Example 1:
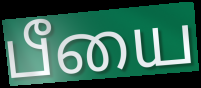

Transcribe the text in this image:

பீயை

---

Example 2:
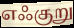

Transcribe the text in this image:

எஃகுறு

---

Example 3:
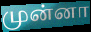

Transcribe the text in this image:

முன்னா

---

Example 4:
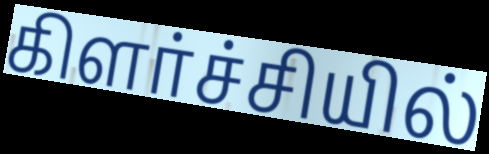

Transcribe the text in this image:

கிளர்ச்சியில்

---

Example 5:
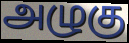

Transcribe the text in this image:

அழுகு